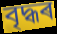
বৃদ্ধৰ